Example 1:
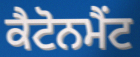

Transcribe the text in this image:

ਕੈਟੋਨਮੈਂਟ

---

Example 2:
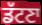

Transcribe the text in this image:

ਡੱਟਣਾ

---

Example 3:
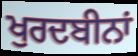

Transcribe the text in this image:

ਖੁਰਦਬੀਨਾਂ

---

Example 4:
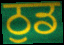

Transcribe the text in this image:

ਠੁਡ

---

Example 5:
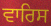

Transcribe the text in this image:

ਵਾਰਿਸ